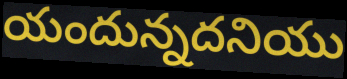
యందున్నదనియు